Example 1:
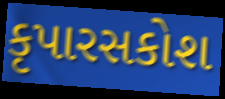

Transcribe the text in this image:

કૃપારસકોશ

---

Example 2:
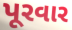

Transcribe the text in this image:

પૂરવાર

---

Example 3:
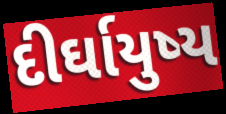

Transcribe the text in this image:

દીર્ઘાયુષ્ય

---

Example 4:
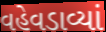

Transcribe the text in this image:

વહેવડાવ્યાં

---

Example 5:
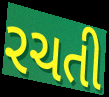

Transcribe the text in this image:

રચતી